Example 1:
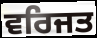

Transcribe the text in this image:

ਵਰਿਜਤ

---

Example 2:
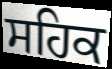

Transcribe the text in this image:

ਸਹਿਕ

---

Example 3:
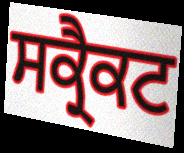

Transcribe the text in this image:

ਸਕ੍ਰੈਕਟ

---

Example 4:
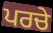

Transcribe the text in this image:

ਪਰਚੇ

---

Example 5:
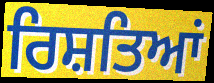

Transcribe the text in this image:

ਰਿਸ਼ਤਿਆਂ